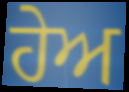
ਹੇਅ